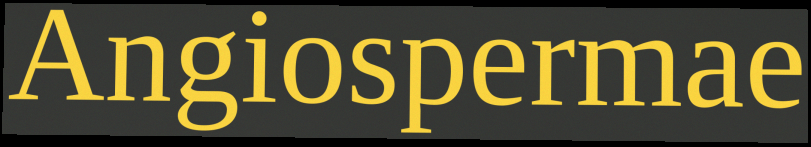
Angiospermae